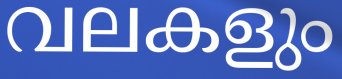
വലകളും